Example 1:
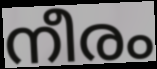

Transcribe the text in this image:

നീരം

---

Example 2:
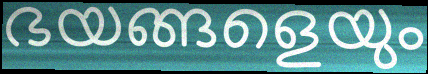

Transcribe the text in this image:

ഭയങ്ങളെയും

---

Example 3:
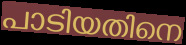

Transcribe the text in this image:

പാടിയതിനെ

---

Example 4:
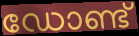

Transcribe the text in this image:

ഡോണ്ട്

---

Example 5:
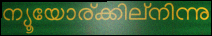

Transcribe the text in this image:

ന്യൂയോര്ക്കില്നിന്നു